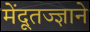
मेंदूतज्ज्ञाने